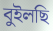
বুইলছি